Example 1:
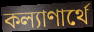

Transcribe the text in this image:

কল্যাণার্থে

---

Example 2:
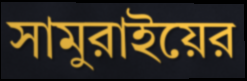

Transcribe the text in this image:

সামুরাইয়ের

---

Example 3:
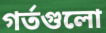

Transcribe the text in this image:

গর্তগুলো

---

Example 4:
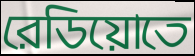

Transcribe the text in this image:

রেডিয়োতে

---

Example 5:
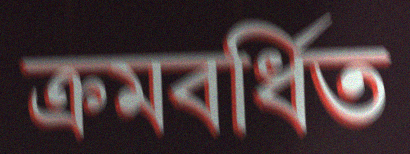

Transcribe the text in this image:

ক্রমবর্ধিত